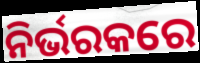
ନିର୍ଭରକରେ